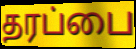
தரப்பை